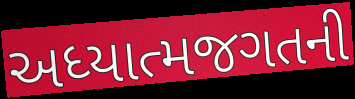
અધ્યાત્મજગતની